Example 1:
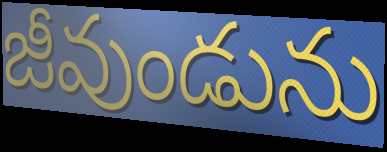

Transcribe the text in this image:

జీవుండును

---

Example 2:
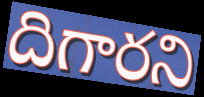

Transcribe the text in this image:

దిగారని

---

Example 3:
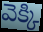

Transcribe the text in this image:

వెక్కి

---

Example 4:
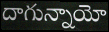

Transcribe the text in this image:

దాగున్నాయో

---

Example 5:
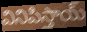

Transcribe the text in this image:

వినిపిస్తాయ్